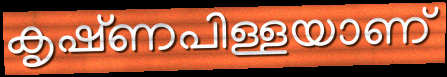
കൃഷ്‌ണപിള്ളയാണ്